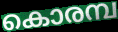
കൊരമ്പ